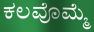
ಕಲವೊಮ್ಮೆ